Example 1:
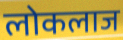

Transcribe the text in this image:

लोकलाज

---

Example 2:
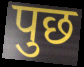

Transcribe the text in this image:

पुछ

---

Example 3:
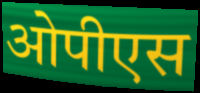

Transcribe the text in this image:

ओपीएस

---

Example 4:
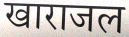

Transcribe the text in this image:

खाराजल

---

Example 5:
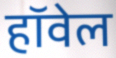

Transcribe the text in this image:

हॉवेल